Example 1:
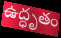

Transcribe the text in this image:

ఉద్ధృతం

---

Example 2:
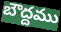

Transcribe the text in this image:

బౌద్దము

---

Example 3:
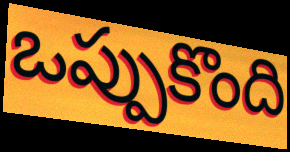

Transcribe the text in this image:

ఒప్పుకొంది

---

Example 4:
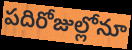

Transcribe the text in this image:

పదిరోజుల్లోనూ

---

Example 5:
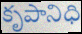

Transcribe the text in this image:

కృపానిధి